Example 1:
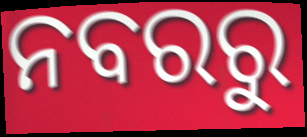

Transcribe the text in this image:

ନବରରୁ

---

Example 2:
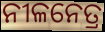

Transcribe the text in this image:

ନୀଳନେତ୍ର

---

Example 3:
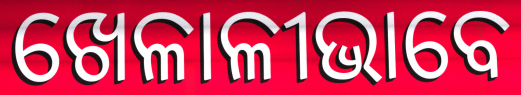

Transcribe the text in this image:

ଖେଳାଳୀଭାବେ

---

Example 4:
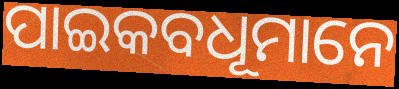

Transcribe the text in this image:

ପାଇକବଧୂମାନେ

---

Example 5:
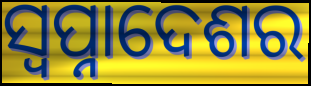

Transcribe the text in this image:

ସ୍ଵପ୍ନାଦେଶର